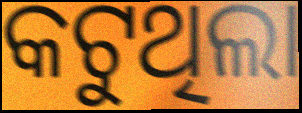
କଟୁଥିଲା